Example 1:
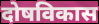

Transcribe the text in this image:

दोषविकास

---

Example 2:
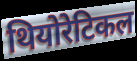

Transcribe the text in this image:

थियोरेटिकल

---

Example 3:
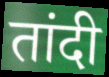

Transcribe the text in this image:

तांदी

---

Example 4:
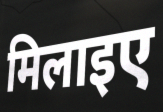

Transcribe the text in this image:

मिलाइए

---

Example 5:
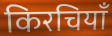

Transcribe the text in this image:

किरचियाँ